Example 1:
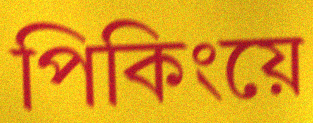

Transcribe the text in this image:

পিকিংয়ে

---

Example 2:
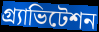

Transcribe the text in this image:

গ্র্যাভিটেশন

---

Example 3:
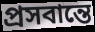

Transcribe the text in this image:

প্রসবান্তে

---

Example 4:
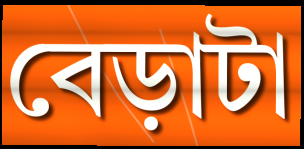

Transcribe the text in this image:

বেড়াটা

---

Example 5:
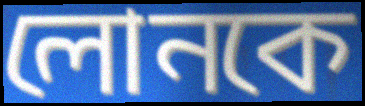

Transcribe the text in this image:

লোনকে